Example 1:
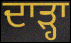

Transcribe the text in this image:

ਦਾੜ੍ਹਾ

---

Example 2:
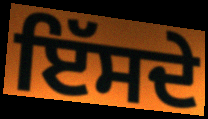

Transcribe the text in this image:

ਇੱਸਦੇ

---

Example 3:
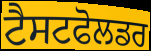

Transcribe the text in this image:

ਟੈਸਟਫੋਲਡਰ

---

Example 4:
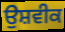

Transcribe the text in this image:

ਉਸ਼ਵੀਕ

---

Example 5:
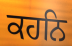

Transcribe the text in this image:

ਕਹਨਿ